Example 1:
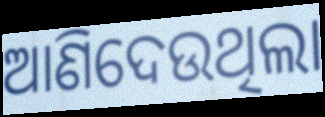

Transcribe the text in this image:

ଆଣିଦେଉଥିଲା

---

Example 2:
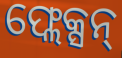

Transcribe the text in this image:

ଫ୍ଲେକ୍ସନ୍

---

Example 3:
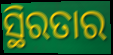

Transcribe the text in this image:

ସ୍ଥିରତାର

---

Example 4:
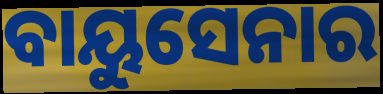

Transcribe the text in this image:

ବାୟୁସେନାର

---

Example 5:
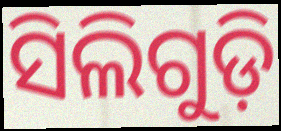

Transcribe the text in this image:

ସିଲିଗୁଡ଼ି